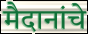
मैदानांचे